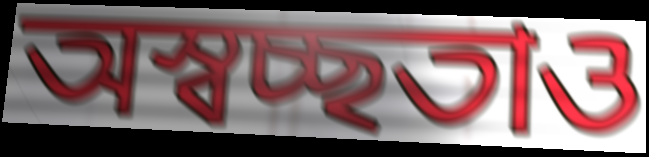
অস্বচ্ছতাও